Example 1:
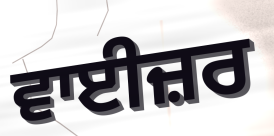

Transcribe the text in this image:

ਵਾਈਜ਼ਰ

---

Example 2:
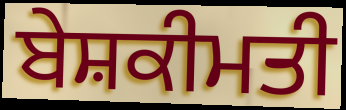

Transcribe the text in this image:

ਬੇਸ਼ਕੀਮਤੀ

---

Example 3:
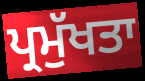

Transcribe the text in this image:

ਪ੍ਰਮੁੱਖਤਾ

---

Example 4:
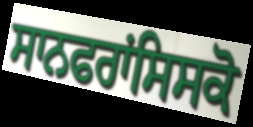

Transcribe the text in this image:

ਸਾਨਫਰਾਂਸਿਸਕੋ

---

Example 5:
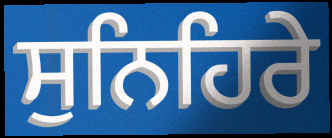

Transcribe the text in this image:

ਸੁਨਿਹਿਰੇ